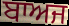
ਬਾਅਜ